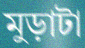
মুড়াটা